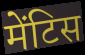
मेंटिस